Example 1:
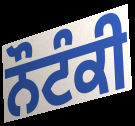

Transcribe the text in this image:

ਨੌਟੰਕੀ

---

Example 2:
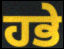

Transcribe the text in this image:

ਹਭੇ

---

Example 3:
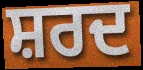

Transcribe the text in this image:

ਸ਼ਰਦ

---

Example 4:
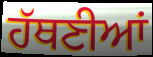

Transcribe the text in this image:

ਹੱਥਣੀਆਂ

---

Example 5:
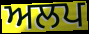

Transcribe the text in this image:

ਅਲਪ